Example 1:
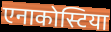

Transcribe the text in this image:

एनाकोस्टिया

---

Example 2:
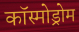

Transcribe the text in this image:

कॉस्मोड्रोम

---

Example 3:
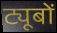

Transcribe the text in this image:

ट्यूबों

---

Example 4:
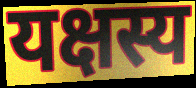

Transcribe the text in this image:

यक्षस्य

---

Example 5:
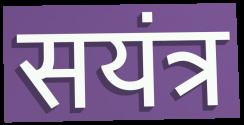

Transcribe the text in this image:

सयंत्र